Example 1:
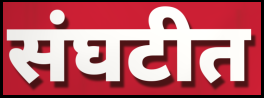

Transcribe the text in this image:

संघटीत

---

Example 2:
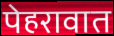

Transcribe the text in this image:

पेहरावात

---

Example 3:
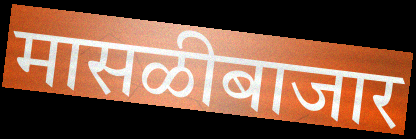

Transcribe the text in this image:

मासळीबाजार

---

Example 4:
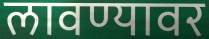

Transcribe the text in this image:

लावण्यावर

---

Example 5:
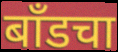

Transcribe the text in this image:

बाँडचा